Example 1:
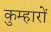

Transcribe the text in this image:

कुम्हारों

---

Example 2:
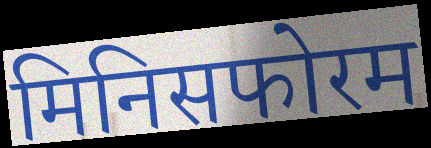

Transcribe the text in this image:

मिनिसफोरम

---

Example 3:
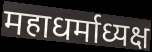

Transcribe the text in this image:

महाधर्माध्यक्ष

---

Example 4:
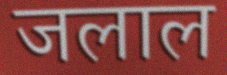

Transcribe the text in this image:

जलाल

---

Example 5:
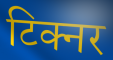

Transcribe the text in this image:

टिक्नर